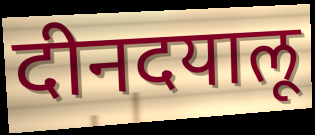
दीनदयालू